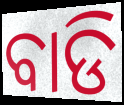
ବାଡି